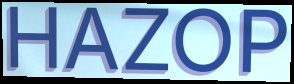
HAZOP